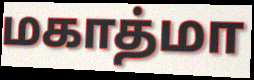
மகாத்மா